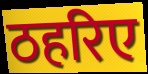
ठहरिए